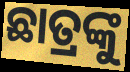
ଛାତ୍ରଙ୍କୁ